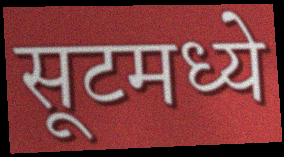
सूटमध्ये